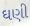
ઘણી